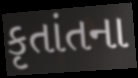
કૃતાંતના